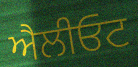
ਐਲੀਓਟ